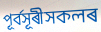
পূৰ্বসূৰীসকলৰ